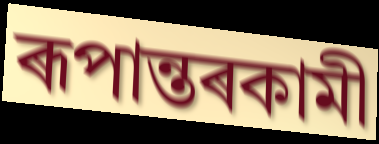
ৰূপান্তৰকামী